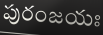
పురంజయః